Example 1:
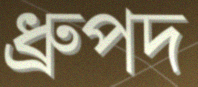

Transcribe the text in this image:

ধ্রুপদ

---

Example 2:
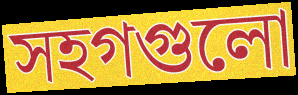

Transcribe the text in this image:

সহগগুলো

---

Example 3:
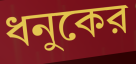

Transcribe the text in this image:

ধনুকের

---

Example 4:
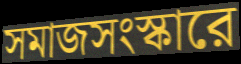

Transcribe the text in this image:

সমাজসংস্কারে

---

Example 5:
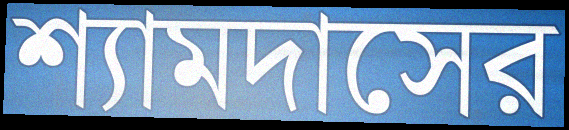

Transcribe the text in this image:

শ্যামদাসের